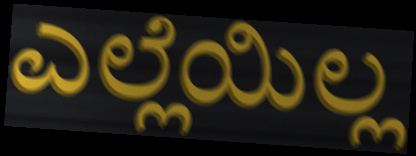
ಎಲ್ಲೆಯಿಲ್ಲ